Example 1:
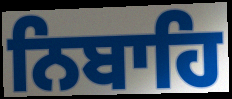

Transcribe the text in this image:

ਨਿਬਾਹਿ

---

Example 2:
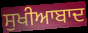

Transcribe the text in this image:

ਸੁਖੀਆਬਾਦ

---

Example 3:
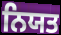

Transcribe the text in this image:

ਨਿਯਤ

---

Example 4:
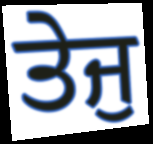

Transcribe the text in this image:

ਤੇਜੁ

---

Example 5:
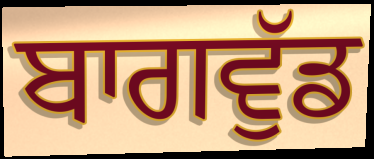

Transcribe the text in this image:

ਬਾਗਵੁੱਡ